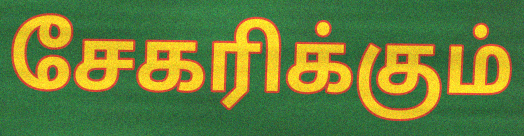
சேகரிக்கும்